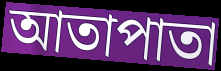
আতাপাতা